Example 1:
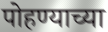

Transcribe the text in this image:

पोहण्याच्या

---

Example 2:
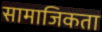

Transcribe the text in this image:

सामाजिकता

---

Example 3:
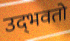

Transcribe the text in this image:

उद्‌भवतो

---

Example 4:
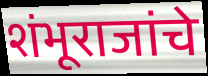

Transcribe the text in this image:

शंभूराजांचे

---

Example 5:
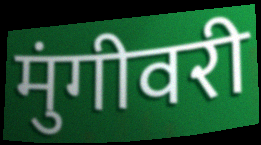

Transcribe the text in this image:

मुंगीवरी